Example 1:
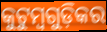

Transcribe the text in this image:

କୁଟୁମ୍ବଗୁଡ଼ିକର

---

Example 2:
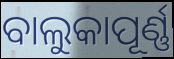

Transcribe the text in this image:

ବାଲୁକାପୂର୍ଣ୍ଣ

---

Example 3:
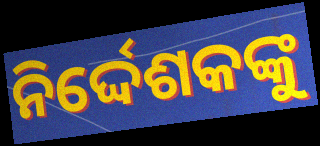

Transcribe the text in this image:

ନିର୍ଦ୍ଦେଶକଙ୍କୁ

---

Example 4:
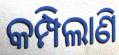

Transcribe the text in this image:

କମ୍ପିଲାଣି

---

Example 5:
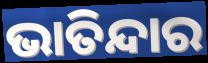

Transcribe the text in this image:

ଭାତିନ୍ଦାର